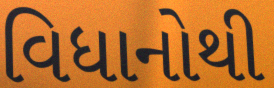
વિધાનોથી